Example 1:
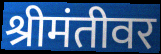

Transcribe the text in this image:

श्रीमंतीवर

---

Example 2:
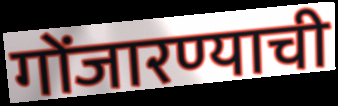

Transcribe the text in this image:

गोंजारण्याची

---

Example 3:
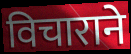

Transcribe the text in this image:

विचाराने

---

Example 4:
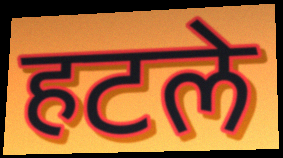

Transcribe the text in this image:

हटले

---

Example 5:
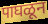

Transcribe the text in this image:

पाघळून